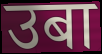
उबा